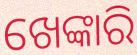
ଖେଙ୍କାରି